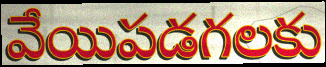
వేయిపడగలకు